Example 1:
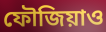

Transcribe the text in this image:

ফৌজিয়াও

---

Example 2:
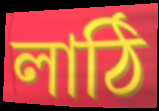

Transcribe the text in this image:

লাঠি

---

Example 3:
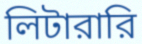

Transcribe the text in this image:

লিটারারি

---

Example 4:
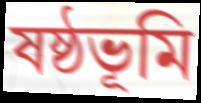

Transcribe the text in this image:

ষষ্ঠভূমি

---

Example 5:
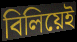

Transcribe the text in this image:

বিলিয়েই